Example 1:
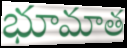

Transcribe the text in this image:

భూమాత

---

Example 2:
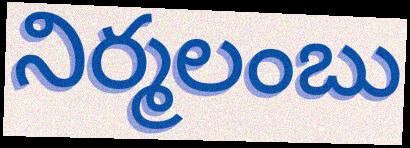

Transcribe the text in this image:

నిర్మలంబు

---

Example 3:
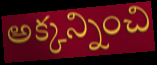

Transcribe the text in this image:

అక్కన్నించి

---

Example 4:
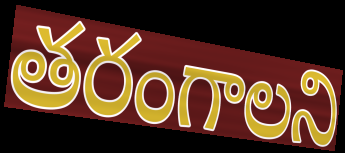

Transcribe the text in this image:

తరంగాలని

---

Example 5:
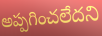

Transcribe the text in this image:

అప్పగించలేదని